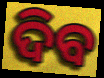
ଦିବ